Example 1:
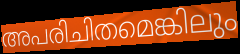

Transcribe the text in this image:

അപരിചിതമെങ്കിലും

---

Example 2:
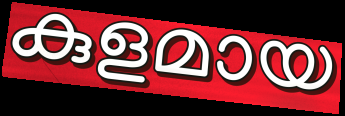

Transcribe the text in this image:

കുളമായ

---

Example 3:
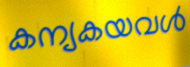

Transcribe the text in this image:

കന്യകയവൾ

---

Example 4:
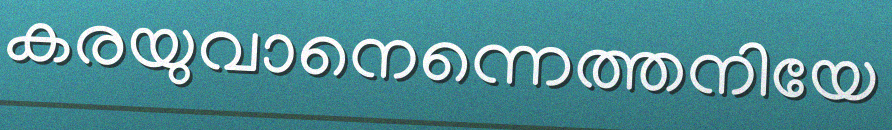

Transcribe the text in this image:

കരയുവാനെന്നെത്തനിയേ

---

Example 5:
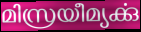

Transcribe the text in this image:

മിസ്രയീമ്യൎക്കു